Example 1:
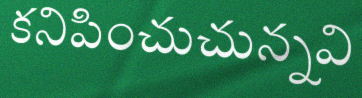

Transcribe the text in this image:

కనిపించుచున్నవి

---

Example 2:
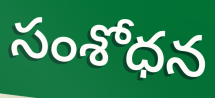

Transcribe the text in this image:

సంశోధన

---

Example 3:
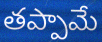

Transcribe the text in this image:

తప్పామే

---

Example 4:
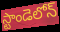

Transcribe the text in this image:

స్టాండెలోన్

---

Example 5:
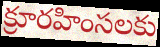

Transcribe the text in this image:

క్రూరహింసలకు